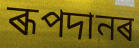
ৰূপদানৰ